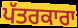
ਪੱਤਰਕਾਰਾ